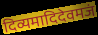
दिव्यमादिदेवमजं